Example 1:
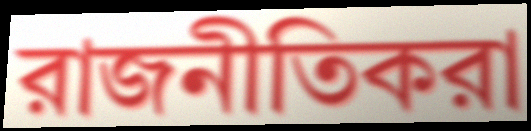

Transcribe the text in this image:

রাজনীতিকরা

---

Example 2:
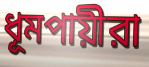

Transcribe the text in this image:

ধূমপায়ীরা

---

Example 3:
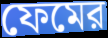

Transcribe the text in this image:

ফেমের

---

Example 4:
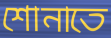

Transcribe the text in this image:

শোনাতে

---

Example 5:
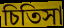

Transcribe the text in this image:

চিতিসা